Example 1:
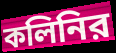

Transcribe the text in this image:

কলিনির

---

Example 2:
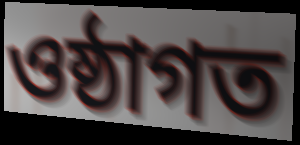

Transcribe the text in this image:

ওষ্ঠাগত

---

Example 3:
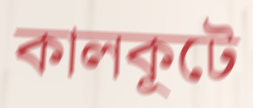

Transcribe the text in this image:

কালকূটে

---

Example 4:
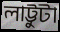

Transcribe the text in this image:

লাট্টুটা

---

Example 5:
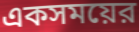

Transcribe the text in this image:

একসময়ের